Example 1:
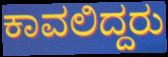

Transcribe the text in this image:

ಕಾವಲಿದ್ದರು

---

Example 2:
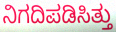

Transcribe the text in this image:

ನಿಗದಿಪಡಿಸಿತ್ತು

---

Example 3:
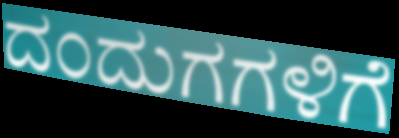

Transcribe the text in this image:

ದಂದುಗಗಳಿಗೆ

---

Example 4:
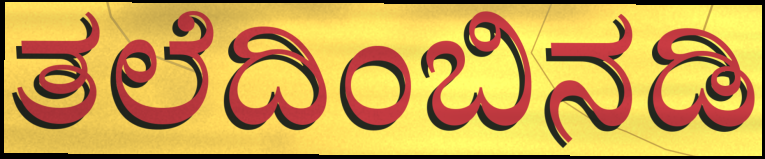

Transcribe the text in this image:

ತಲೆದಿಂಬಿನಡಿ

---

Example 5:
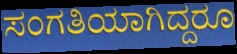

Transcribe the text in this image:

ಸಂಗತಿಯಾಗಿದ್ದರೂ